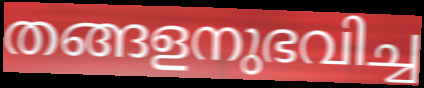
തങ്ങളനുഭവിച്ച